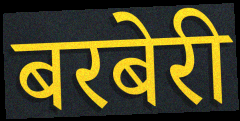
बरबेरी